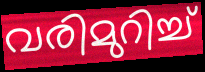
വരിമുറിച്ച്